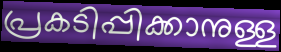
പ്രകടിപ്പിക്കാനുള്ള